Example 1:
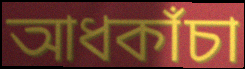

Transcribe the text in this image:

আধকাঁচা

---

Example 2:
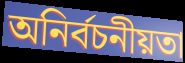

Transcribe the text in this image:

অনির্বচনীয়তা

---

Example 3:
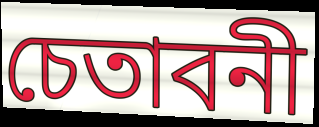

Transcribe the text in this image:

চেতাবনী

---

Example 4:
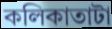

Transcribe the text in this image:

কলিকাতাটা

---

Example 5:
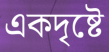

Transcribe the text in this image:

একদৃষ্টে